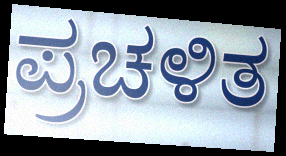
ಪ್ರಚಳಿತ